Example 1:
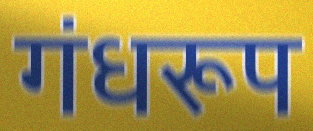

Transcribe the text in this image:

गंधरूप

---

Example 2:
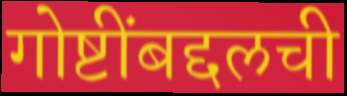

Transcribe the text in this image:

गोष्टींबद्दलची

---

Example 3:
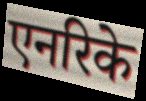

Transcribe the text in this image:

एनरिके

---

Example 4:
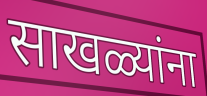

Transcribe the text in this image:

साखळ्यांना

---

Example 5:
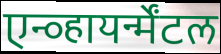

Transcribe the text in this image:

एन्व्हायर्न्मेंटल